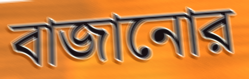
বাজানোর